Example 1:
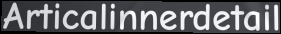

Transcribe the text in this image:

Articalinnerdetail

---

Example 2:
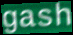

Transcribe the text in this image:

gash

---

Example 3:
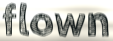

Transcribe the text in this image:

flown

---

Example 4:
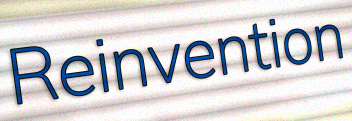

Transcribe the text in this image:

Reinvention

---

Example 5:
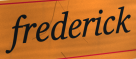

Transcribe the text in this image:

frederick